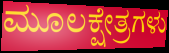
ಮೂಲಕ್ಷೇತ್ರಗಳು